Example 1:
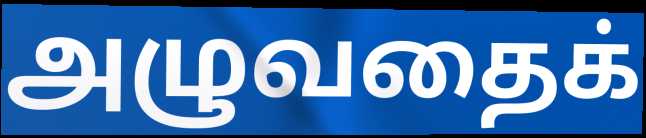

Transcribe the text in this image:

அழுவதைக்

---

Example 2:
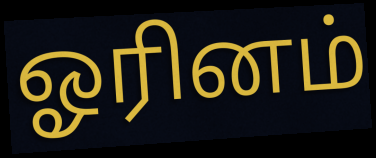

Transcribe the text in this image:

ஓரினம்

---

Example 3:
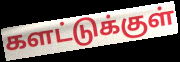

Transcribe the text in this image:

களட்டுக்குள்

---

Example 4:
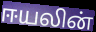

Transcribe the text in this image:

ஈயலின்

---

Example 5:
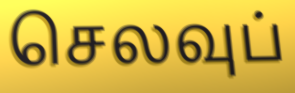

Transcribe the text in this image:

செலவுப்